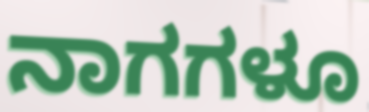
ನಾಗಗಳೂ